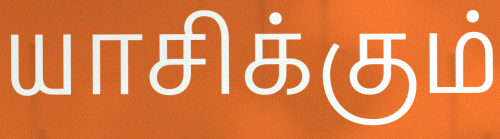
யாசிக்கும்